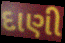
દાણી